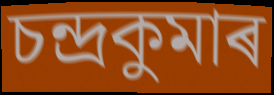
চন্দ্ৰকুমাৰ